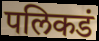
पलिकडं